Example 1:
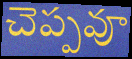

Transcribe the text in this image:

చెప్పవూ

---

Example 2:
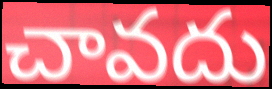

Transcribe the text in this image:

చావదు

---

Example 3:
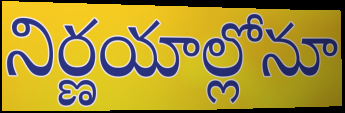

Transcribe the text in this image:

నిర్ణయాల్లోనూ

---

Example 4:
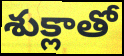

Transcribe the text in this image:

శుక్లాతో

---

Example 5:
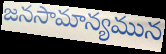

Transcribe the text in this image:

జనసామాన్యమున